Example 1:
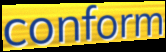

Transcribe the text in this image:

conform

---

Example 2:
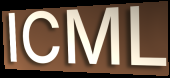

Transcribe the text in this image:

ICML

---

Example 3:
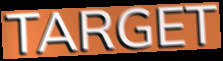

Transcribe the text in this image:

TARGET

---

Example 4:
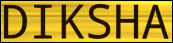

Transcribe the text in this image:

DIKSHA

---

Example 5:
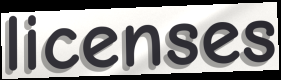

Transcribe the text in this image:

licenses